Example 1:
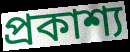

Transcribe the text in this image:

প্রকাশ্য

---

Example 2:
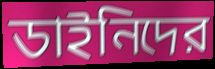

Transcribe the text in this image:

ডাইনিদের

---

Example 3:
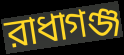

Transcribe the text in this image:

রাধাগঞ্জ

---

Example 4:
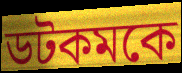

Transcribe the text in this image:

ডটকমকে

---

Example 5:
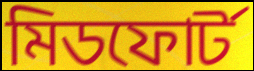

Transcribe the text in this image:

মিডফোর্ট